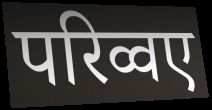
परिव्वए